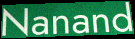
Nanand